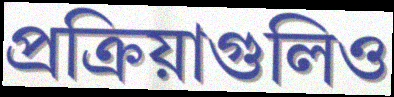
প্রক্রিয়াগুলিও